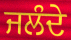
ਜਲੰਦੇ